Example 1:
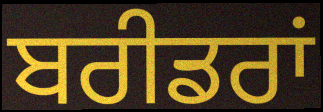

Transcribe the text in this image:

ਬਰੀਡਰਾਂ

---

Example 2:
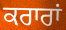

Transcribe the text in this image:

ਕਰਾਰਾਂ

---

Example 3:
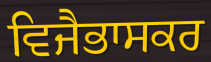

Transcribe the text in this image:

ਵਿਜੈਭਾਸਕਰ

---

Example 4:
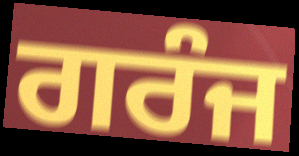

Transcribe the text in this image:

ਗਰੰਜ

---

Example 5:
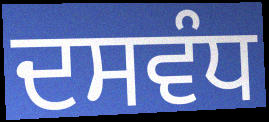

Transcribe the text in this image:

ਦਸਵੰਧ